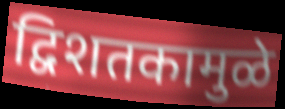
द्विशतकामुळे